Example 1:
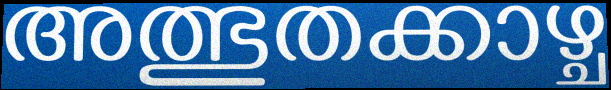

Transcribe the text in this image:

അത്ഭുതക്കാഴ്ച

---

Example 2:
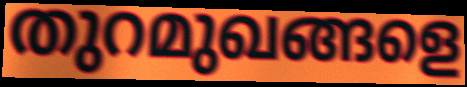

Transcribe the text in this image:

തുറമുഖങ്ങളെ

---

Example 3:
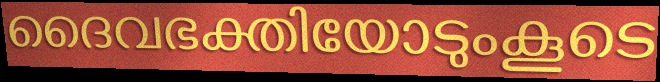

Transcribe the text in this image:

ദൈവഭക്തിയോടുംകൂടെ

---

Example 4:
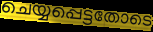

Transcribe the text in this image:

ചെയ്യപ്പെട്ടതോടെ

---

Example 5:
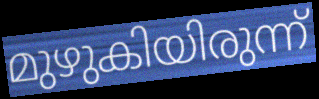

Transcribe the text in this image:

മുഴുകിയിരുന്ന്